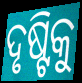
ଦୃଷ୍ଟିକୁ